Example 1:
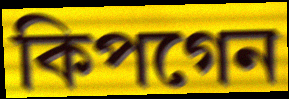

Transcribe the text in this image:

কিপগেন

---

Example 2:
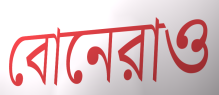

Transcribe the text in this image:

বোনেরাও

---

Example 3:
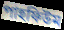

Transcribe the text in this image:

পাহফিউম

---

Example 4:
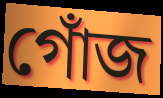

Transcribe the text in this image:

গোঁজ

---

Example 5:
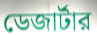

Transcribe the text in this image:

ডেজার্টার